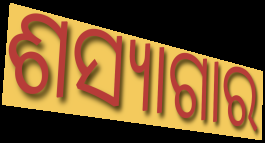
ଶସ୍ୟାଗାର